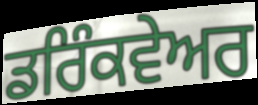
ਡਰਿੰਕਵੇਅਰ